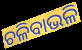
ଚଳିବାଭଳି